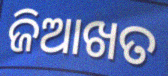
ଜିଆଖତ